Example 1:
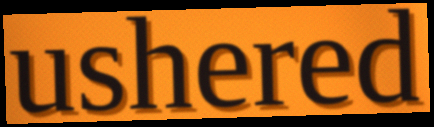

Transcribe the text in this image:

ushered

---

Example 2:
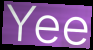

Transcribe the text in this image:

Yee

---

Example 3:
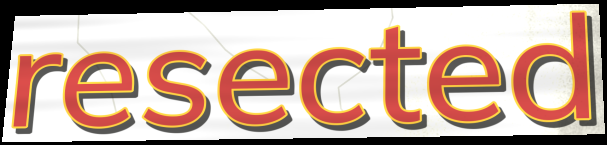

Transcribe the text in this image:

resected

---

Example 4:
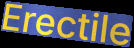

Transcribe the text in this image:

Erectile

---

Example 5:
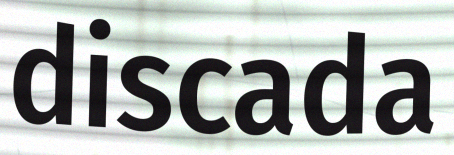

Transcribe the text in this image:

discada